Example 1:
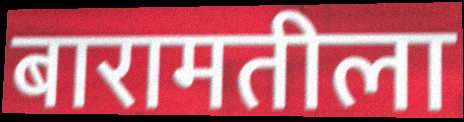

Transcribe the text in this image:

बारामतीला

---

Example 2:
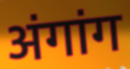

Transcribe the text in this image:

अंगांग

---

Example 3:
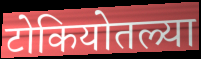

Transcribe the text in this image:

टोकियोतल्या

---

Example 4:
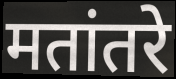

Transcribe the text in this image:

मतांतरे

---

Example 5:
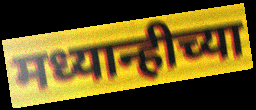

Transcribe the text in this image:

मध्यान्हीच्या